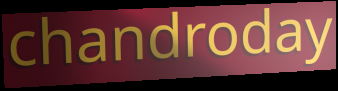
chandroday